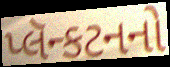
પ્લૅન્કટનનો